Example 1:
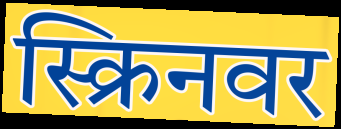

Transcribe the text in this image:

स्क्रिनवर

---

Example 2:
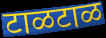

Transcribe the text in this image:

टाळटाळ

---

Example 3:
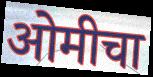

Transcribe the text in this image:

ओमीचा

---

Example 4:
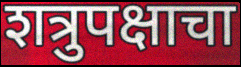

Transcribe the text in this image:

शत्रुपक्षाचा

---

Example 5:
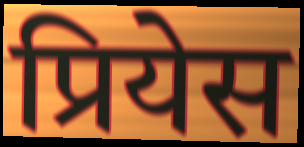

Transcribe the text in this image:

प्रियेस